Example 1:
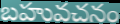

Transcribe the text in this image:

బహువచనం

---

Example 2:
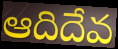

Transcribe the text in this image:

ఆదిదేవ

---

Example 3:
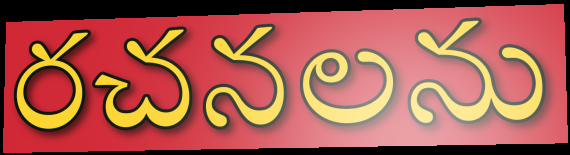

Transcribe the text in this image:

రచనలను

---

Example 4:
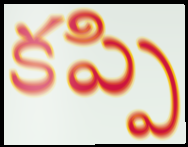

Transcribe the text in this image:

కప్పి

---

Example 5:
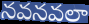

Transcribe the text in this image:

నవనవలా